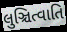
લુઞ્ચિત્વાતિ